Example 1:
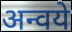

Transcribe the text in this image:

अन्वये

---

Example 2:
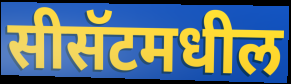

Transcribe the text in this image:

सीसॅटमधील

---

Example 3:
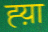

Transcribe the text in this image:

ह्य़ा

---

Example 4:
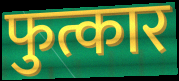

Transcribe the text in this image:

फुत्कार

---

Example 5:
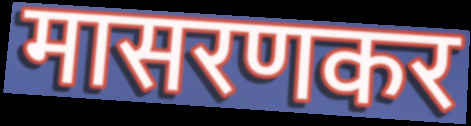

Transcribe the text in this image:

मासरणकर